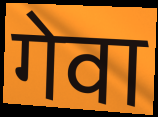
गेवा